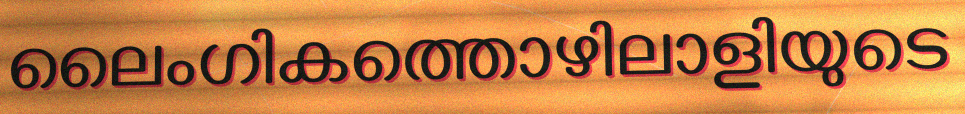
ലൈംഗികത്തൊഴിലാളിയുടെ